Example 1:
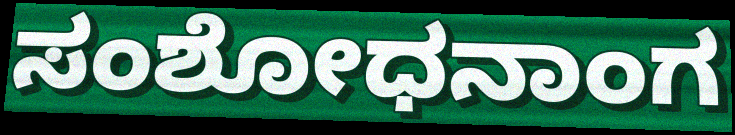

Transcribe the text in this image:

ಸಂಶೋಧನಾಂಗ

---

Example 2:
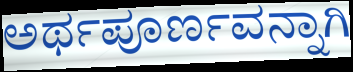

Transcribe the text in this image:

ಅರ್ಥಪೂರ್ಣವನ್ನಾಗಿ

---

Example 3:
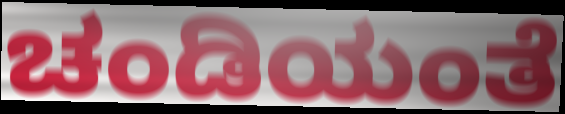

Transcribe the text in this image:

ಚಂಡಿಯಂತೆ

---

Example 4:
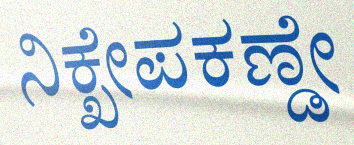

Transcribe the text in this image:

ನಿಕ್ಖೇಪಕಣ್ಡೇ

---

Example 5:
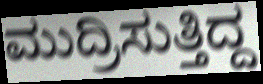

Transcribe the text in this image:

ಮುದ್ರಿಸುತ್ತಿದ್ದ